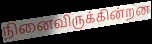
நினைவிருக்கின்றன